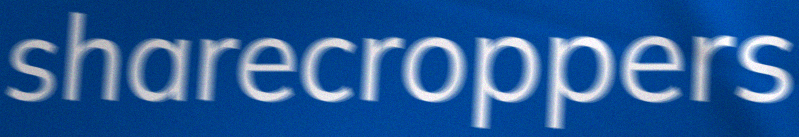
sharecroppers